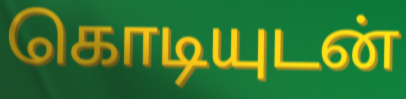
கொடியுடன்